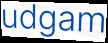
udgam